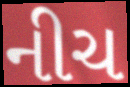
નીચ